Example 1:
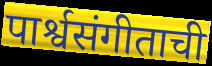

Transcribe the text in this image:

पार्श्वसंगीताची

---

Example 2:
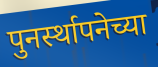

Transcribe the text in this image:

पुनर्स्थापनेच्या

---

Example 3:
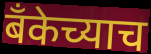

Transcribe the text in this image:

बँकेच्याच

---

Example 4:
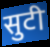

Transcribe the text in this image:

सुटी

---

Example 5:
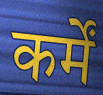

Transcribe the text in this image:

कर्में